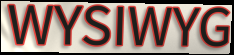
WYSIWYG